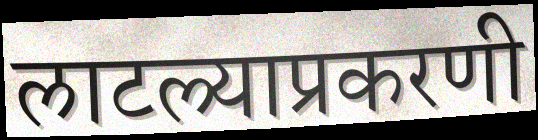
लाटल्याप्रकरणी